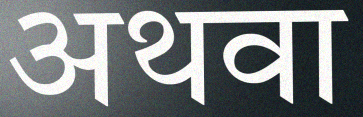
अथवा